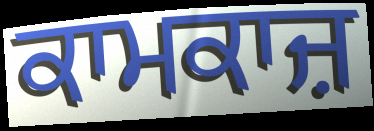
ਕਾਮਕਾਜ਼